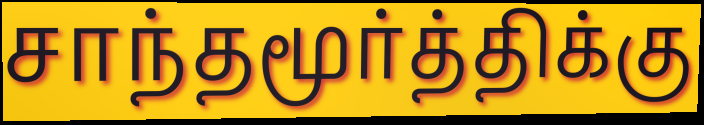
சாந்தமூர்த்திக்கு